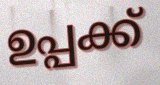
ഉപ്പക്ക്